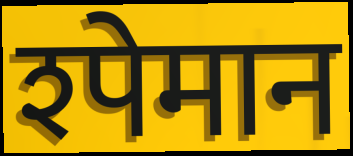
श्पेमान